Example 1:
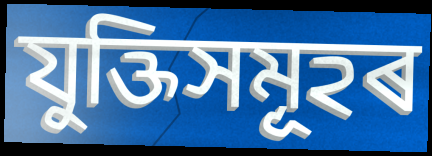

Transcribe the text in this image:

যুক্তিসমূহৰ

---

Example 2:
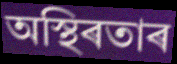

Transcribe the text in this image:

অস্থিৰতাৰ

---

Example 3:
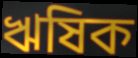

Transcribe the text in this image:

ঋষিক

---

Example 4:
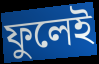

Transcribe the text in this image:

ফুলেই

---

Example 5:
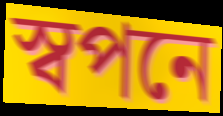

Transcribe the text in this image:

স্বপনে